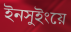
ইনসুইংয়ে